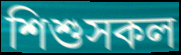
শিশুসকল